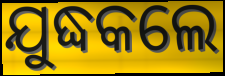
ଯୁଦ୍ଧକଲେ